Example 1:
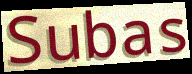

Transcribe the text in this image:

Subas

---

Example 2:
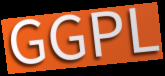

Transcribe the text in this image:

GGPL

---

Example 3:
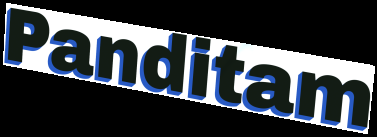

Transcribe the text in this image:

Panditam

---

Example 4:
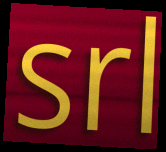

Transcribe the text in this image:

srl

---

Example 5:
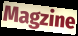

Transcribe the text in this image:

Magzine